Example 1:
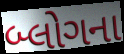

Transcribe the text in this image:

બ્લોગના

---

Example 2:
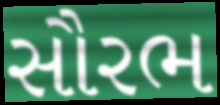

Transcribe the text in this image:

સૌરભ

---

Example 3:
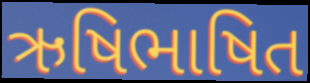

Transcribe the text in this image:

ઋષિભાષિત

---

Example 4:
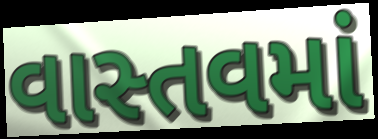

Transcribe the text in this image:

વાસ્તવમાં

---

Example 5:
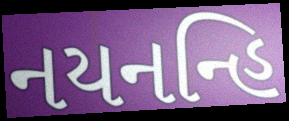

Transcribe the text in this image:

નયનન્હિ